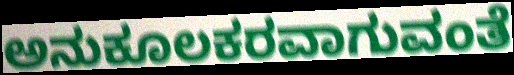
ಅನುಕೂಲಕರವಾಗುವಂತೆ